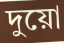
দুয়ো